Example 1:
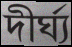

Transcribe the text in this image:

দীর্ঘ্য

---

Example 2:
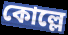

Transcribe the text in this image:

কোল্লে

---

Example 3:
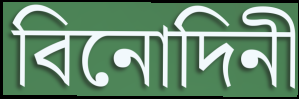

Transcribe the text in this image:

বিনোদিনী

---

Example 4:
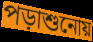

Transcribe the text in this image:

পড়াশুনোয়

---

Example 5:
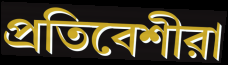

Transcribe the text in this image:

প্রতিবেশীরা